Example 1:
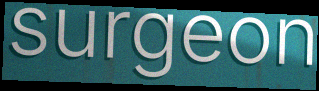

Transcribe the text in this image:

surgeon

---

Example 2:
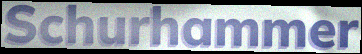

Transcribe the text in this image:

Schurhammer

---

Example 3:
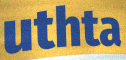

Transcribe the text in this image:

uthta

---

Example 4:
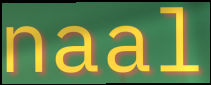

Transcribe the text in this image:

naal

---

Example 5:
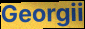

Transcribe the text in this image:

Georgii